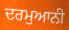
ਦਰਮੁਆਨੀ